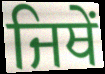
ਜਿਥੇਂ